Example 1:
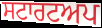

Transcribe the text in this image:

ਸਟਾਰਟਅਪ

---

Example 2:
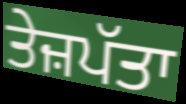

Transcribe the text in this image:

ਤੇਜ਼ਪੱਤਾ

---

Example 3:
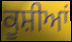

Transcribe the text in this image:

ਕੂਸ਼ੀਆਂ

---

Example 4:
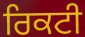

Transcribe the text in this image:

ਰਿਕਟੀ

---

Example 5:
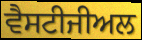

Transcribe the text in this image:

ਵੈਸਟੀਜੀਅਲ